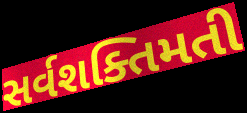
સર્વશક્તિમતી